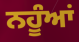
ਨਹੂੰਆਂ